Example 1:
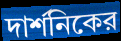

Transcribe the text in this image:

দার্শনিকের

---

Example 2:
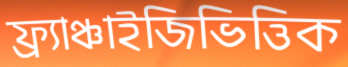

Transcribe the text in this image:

ফ্র্যাঞ্চাইজিভিত্তিক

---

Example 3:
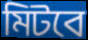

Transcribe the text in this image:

মিটবে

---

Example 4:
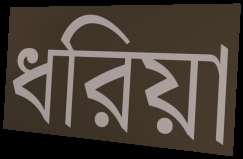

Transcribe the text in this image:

ধরিয়া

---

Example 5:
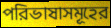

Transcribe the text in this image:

পরিভাষাসমূহের